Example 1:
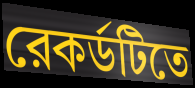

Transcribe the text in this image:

রেকর্ডটিতে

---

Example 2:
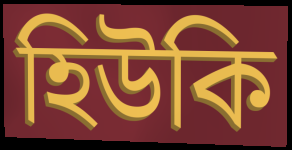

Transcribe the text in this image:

হিউকি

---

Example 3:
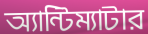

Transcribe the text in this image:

অ্যান্টিম্যাটার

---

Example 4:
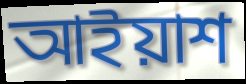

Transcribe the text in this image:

আইয়াশ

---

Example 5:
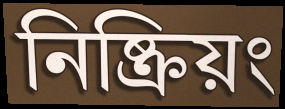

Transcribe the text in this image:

নিষ্ক্রিয়ং